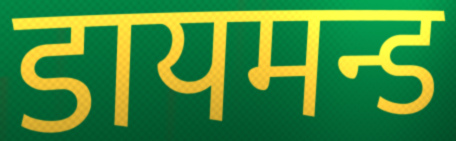
डायमन्ड